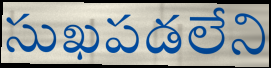
సుఖపడలేని